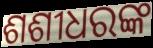
ଶଶୀଧରଙ୍କ